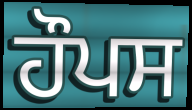
ਹੌਪਸ